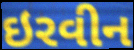
ઇરવીન